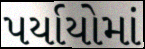
પર્યાયોમાં